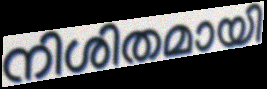
നിശിതമായി